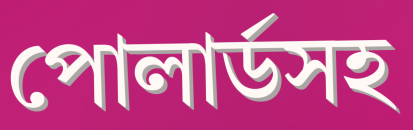
পোলার্ডসহ